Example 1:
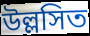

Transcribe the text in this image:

উল্লসিত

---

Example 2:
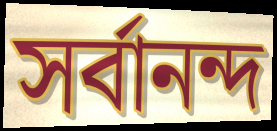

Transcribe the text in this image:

সৰ্বানন্দ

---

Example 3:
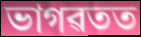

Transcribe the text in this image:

ভাগৱতত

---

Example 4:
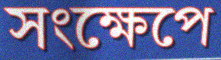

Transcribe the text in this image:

সংক্ষেপে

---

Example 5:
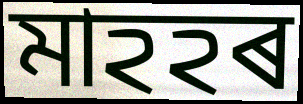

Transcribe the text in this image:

মাহহৰ